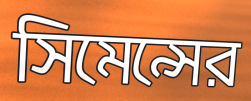
সিমেন্সের